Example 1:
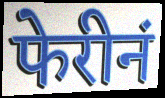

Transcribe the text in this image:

फेरीनं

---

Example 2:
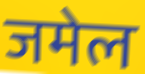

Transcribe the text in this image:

जमेल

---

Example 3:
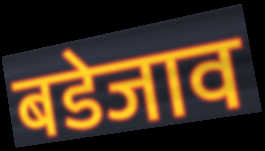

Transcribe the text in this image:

बडेजाव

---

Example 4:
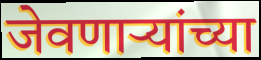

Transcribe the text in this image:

जेवणाऱ्यांच्या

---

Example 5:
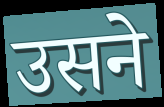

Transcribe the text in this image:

उसने